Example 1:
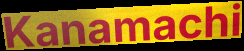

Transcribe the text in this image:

Kanamachi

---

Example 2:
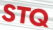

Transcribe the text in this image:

STQ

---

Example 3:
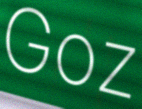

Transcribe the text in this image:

Goz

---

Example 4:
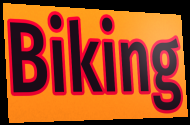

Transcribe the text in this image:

Biking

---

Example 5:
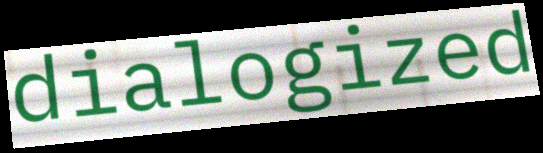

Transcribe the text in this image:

dialogized